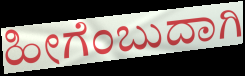
ಹೀಗೆಂಬುದಾಗಿ